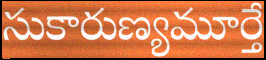
సుకారుణ్యమూర్తే